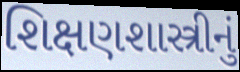
શિક્ષણશાસ્ત્રીનું